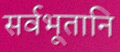
सर्वभूतानि